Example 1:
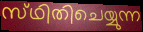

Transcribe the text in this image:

സ്‌ഥിതിചെയ്യുന്ന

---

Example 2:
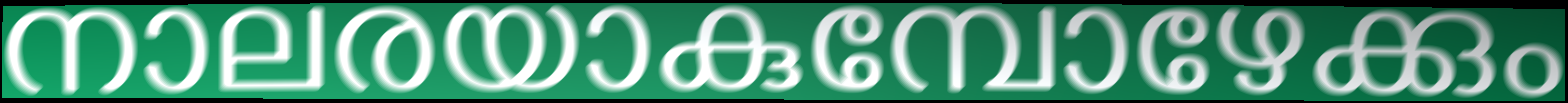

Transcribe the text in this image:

നാലരയാകുമ്പോഴേക്കും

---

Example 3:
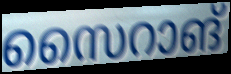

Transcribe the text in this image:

സൈറാങ്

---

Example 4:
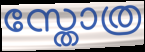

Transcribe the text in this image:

സ്തോത്ര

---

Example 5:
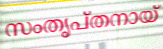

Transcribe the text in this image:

സംതൃപ്തനായ്